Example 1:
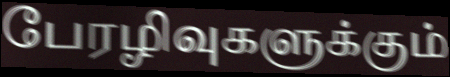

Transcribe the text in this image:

பேரழிவுகளுக்கும்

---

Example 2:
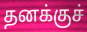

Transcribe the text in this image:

தனக்குச்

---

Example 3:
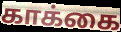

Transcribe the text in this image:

காக்கை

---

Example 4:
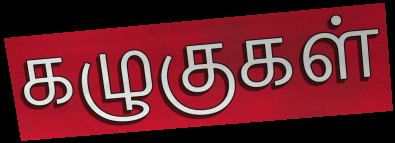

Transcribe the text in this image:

கழுகுகள்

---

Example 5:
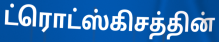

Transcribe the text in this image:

ட்ரொட்ஸ்கிசத்தின்